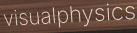
visualphysics